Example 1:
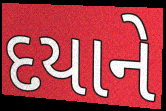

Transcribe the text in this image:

દયાને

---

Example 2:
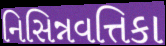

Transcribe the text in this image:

નિસિન્નવત્તિકા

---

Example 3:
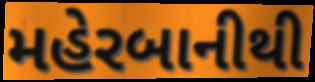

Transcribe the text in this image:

મહેરબાનીથી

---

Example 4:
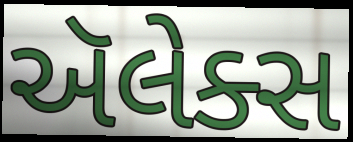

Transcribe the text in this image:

ઍલેક્સ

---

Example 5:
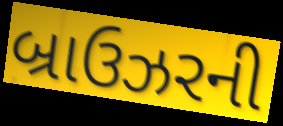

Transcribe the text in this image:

બ્રાઉઝરની